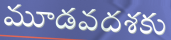
మూడవదశకు